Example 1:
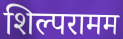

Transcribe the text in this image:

शिल्परामम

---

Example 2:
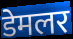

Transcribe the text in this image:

डेमलर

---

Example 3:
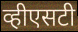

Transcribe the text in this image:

व्हीएसटी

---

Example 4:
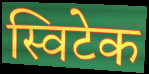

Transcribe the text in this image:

स्विटेक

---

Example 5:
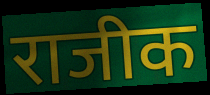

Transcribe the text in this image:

राजीक